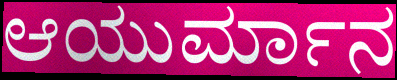
ಆಯುರ್ಮಾನ